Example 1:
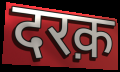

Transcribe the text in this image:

दरक़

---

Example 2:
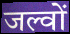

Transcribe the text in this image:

जल्वों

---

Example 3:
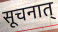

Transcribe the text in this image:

सूचनात्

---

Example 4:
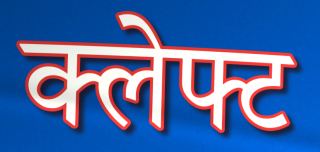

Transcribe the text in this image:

क्लेफ्ट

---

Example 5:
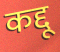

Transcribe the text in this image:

कद्दू